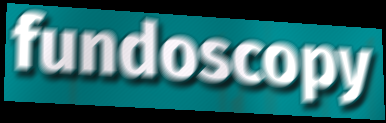
fundoscopy